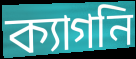
ক্যাগনি